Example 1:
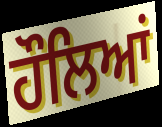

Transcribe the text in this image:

ਹੌਲਿਆਂ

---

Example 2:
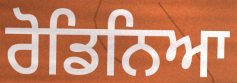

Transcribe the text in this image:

ਰੋਡਿਨਿਆ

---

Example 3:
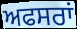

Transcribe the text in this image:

ਅਫਸਰਾਂ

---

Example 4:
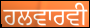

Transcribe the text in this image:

ਹਲਵਾਰਵੀ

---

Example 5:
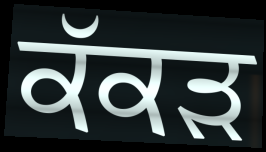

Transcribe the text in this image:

ਕੱਕੜ